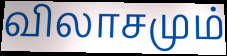
விலாசமும்